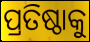
ପ୍ରତିଷ୍ଠାକୁ